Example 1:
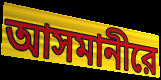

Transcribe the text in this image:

আসমানীরে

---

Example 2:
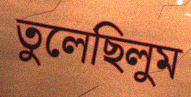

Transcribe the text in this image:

তুলেছিলুম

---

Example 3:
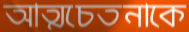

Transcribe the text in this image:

আত্মচেতনাকে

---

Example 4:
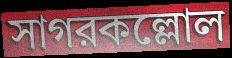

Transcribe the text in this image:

সাগরকল্লোল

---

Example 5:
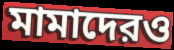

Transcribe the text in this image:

মামাদেরও